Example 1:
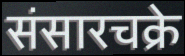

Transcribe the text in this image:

संसारचक्रे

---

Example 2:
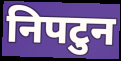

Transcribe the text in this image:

निपटुन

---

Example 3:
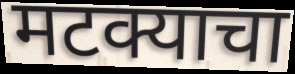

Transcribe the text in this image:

मटक्याचा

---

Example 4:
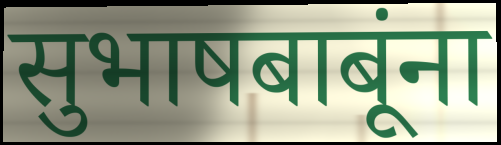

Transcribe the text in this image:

सुभाषबाबूंना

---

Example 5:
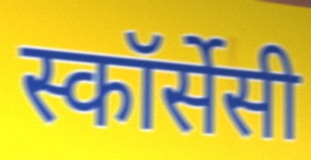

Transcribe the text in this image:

स्कॉर्सेसी